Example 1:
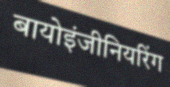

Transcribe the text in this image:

बायोइंजीनियरिंग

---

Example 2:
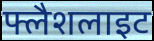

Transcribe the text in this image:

फ्लैशलाइट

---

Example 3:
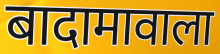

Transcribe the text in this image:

बादामावाला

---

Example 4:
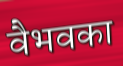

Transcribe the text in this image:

वैभवका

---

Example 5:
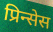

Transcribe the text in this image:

प्रिन्सेस